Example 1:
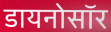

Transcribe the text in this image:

डायनोसॉर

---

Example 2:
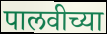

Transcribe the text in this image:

पालवीच्या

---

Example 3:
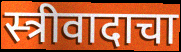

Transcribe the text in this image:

स्त्रीवादाचा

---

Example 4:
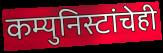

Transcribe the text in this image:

कम्युनिस्टांचेही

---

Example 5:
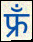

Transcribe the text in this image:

फ्रँ